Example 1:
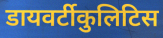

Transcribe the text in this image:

डायवर्टीकुलिटिस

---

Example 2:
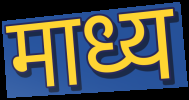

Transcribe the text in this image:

माध्य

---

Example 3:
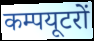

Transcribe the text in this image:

कम्पयूटरों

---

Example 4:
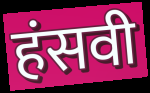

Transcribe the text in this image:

हंसवी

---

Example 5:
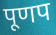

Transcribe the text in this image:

पूणप